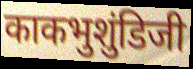
काकभुशुंडिजी